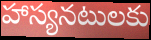
హాస్యనటులకు